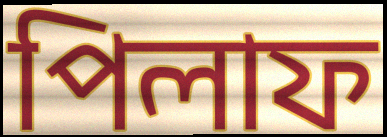
পিলাফ